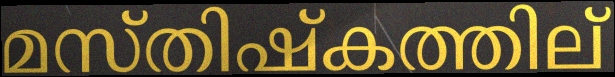
മസ്തിഷ്കത്തില്